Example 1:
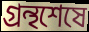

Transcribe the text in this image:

গ্রন্থশেষে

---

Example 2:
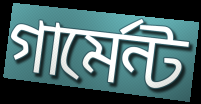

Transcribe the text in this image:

গার্মেন্ট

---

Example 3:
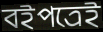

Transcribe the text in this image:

বইপত্রেই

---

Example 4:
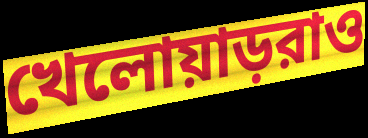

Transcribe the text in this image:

খেলোয়াড়রাও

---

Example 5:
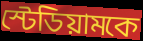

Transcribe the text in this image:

স্টেডিয়ামকে